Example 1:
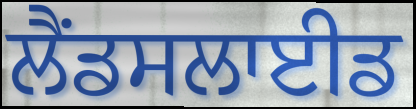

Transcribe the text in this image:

ਲੈਂਡਸਲਾਈਡ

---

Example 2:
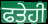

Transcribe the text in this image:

ਫਤੇਹੀ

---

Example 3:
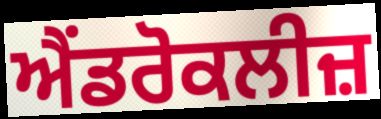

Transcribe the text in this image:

ਐਂਡਰੋਕਲੀਜ਼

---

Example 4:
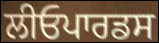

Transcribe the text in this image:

ਲੀਓਪਾਰਡਸ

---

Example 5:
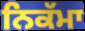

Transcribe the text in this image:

ਨਿਕੱਮਾ